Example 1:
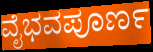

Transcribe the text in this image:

ವೈಭವಪೂರ್ಣ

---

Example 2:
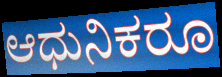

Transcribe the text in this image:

ಆಧುನಿಕರೂ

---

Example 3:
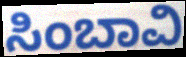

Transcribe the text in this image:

ಸಿಂಬಾವಿ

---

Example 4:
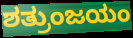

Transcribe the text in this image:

ಶತ್ರುಂಜಯಂ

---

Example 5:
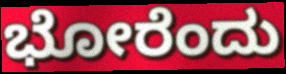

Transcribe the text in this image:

ಭೋರೆಂದು